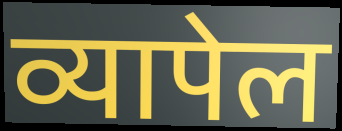
व्यापेल